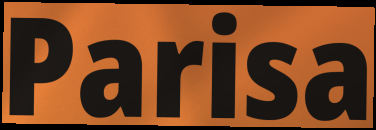
Parisa